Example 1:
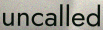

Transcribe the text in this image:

uncalled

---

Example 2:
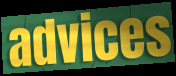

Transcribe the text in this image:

advices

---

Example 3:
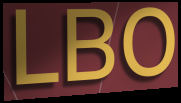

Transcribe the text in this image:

LBO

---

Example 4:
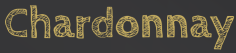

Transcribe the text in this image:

Chardonnay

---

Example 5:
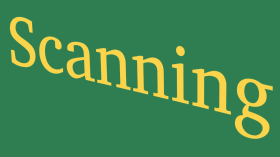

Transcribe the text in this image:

Scanning